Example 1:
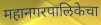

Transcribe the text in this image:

महानगरपालिकेचा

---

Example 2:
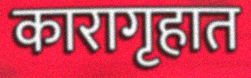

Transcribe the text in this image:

कारागृहात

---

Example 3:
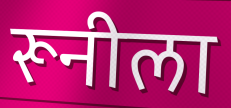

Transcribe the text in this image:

रूनीला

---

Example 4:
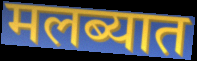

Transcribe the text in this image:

मलब्यात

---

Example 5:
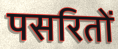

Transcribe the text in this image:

पसरितों